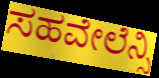
ಸಹವೇಲೆನ್ಸಿ